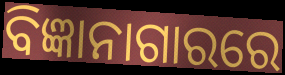
ବିଜ୍ଞାନାଗାରରେ